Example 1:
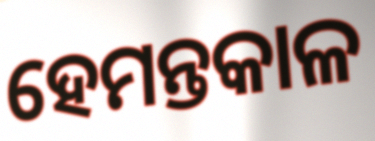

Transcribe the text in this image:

ହେମନ୍ତକାଳ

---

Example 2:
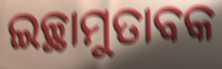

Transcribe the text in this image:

ଇଚ୍ଛାମୁତାବକ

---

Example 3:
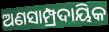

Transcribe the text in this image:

ଅଣସାମ୍ପ୍ରଦାୟିକ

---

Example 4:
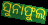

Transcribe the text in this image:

ସୁନାଫୁଲ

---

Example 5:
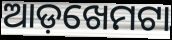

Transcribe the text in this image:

ଆଡ଼ଖେମଟା